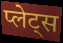
प्‍लेट्स